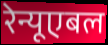
रेन्यूएबल